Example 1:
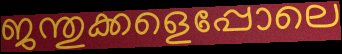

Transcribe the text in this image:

ജന്തുക്കളെപ്പോലെ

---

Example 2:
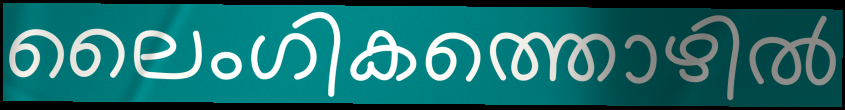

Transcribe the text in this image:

ലൈംഗികത്തൊഴിൽ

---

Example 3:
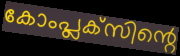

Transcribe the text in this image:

കോംപ്ലക്‌സിന്റെ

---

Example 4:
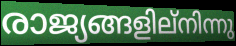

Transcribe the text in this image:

രാജ്യങ്ങളില്നിന്നു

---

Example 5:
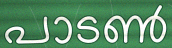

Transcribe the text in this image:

പാടൺ